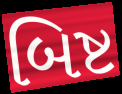
બિષ્ટ